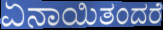
ಏನಾಯಿತಂದರೆ